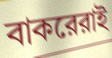
বাকরেরাই